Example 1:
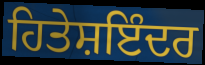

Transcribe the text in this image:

ਹਿਤੇਸ਼ਇੰਦਰ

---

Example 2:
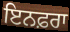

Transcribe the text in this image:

ਇਨਫ਼ਰਾ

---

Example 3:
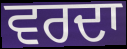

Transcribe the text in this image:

ਵਰਦਾ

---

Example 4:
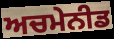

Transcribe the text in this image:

ਅਚਮੇਨੀਡ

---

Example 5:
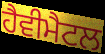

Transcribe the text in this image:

ਹੈਵੀਮੈਟਲ